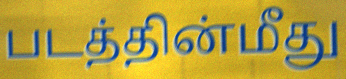
படத்தின்மீது